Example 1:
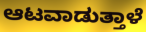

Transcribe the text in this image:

ಆಟವಾಡುತ್ತಾಳೆ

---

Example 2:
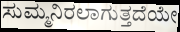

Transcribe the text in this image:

ಸುಮ್ಮನಿರಲಾಗುತ್ತದೆಯೇ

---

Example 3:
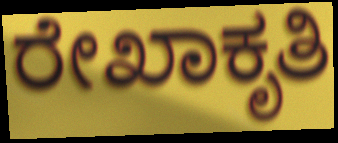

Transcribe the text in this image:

ರೇಖಾಕೃತಿ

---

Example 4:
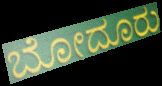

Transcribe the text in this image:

ಬೋದೂರು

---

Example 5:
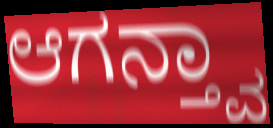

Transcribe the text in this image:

ಆಗನ್ತ್ವಾ